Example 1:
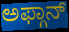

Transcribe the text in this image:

ಅಫ್ಗಾನ್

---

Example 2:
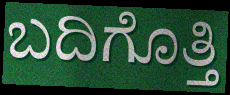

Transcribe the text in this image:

ಬದಿಗೊತ್ತಿ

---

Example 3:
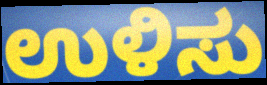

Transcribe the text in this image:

ಉಳಿಸು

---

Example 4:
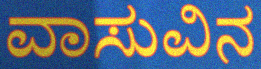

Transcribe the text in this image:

ವಾಸುವಿನ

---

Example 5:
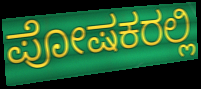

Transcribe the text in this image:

ಪೋಷಕರಲ್ಲಿ